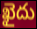
ఖైదు